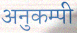
अनुकम्पी